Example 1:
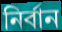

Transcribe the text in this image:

নির্বান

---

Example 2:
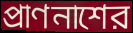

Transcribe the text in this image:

প্রাণনাশের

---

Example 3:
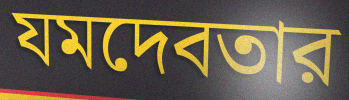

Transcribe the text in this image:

যমদেবতার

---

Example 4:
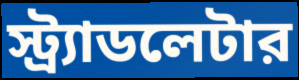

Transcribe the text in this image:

স্ট্র্যাডলেটার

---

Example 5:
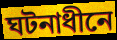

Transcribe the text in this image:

ঘটনাধীনে